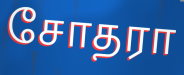
சோதரா